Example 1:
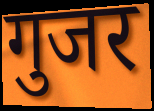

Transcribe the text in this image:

गुजर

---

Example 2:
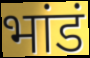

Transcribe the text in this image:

भांडं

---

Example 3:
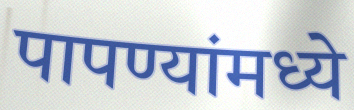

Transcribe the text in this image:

पापण्यांमध्ये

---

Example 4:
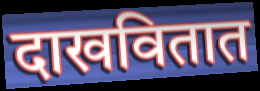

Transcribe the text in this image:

दाखवितात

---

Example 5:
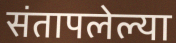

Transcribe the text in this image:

संतापलेल्या